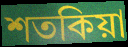
শতকিয়া